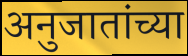
अनुजातांच्या